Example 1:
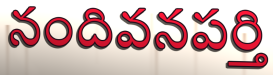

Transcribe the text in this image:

నందివనపర్తి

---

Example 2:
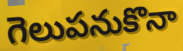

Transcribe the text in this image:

గెలుపనుకొనా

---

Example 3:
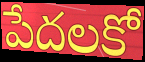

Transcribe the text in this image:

పేదలకో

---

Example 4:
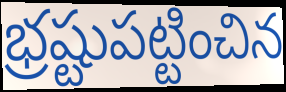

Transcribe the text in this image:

భ్రష్టుపట్టించిన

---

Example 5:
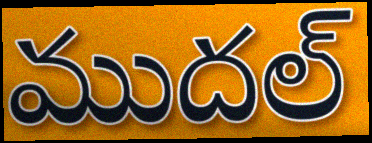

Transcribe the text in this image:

ముదల్